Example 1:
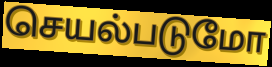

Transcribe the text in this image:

செயல்படுமோ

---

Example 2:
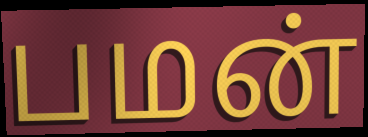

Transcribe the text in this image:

பமன்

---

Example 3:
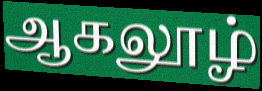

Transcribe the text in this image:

ஆகலூழ்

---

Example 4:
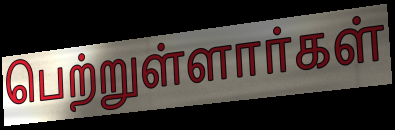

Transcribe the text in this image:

பெற்றுள்ளார்கள்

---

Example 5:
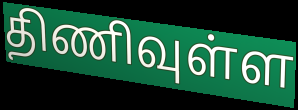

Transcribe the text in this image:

திணிவுள்ள